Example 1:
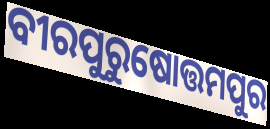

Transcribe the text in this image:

ବୀରପୁରୁଷୋତ୍ତମପୁର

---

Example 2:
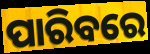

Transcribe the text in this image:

ପାରିବରେ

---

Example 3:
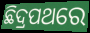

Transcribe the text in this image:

ଛିଦ୍ରପଥରେ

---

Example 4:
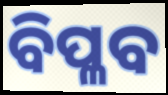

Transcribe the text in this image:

ବିପ୍ଳବ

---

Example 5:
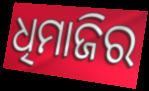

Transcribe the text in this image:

ଧିମାଜିର